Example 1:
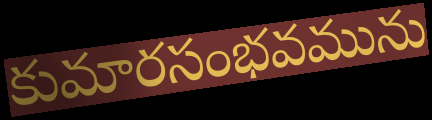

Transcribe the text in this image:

కుమారసంభవమును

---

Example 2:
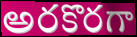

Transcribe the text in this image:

అరకొరగా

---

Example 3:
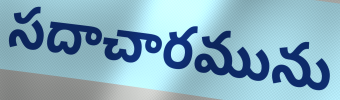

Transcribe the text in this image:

సదాచారమును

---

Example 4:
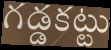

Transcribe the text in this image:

గడ్డకట్టు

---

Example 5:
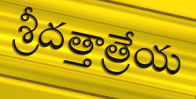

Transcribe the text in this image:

శ్రీదత్తాత్రేయ